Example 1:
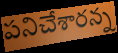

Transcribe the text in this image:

పనిచేశారన్న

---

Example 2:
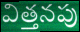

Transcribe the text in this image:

విత్తనపు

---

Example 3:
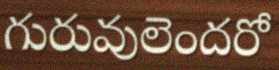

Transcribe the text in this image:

గురువులెందరో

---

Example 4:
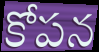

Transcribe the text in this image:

కోపన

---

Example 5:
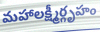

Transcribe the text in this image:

మహాలక్ష్మీర్గృహం